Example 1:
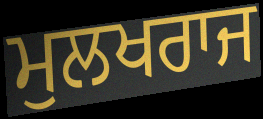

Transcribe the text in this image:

ਮੁਲਖਰਾਜ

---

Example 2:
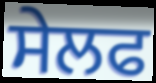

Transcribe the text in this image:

ਸੇਲਫ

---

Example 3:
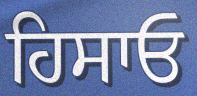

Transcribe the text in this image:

ਹਿਸਾਓ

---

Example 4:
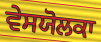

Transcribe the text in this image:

ਵੇਸਯੋਲਕਾ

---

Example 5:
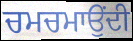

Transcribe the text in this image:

ਚਮਚਮਾਉਂਦੀ